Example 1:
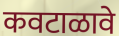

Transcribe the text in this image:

कवटाळावे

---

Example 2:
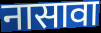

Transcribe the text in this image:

नासावा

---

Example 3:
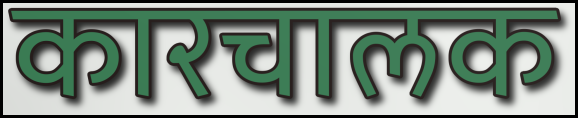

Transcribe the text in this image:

कारचालक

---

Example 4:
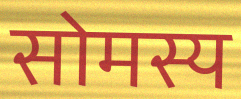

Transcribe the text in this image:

सोमस्य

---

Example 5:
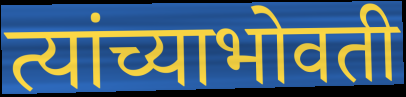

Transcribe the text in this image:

त्यांच्याभोवती